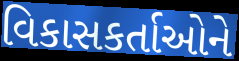
વિકાસકર્તાઓને